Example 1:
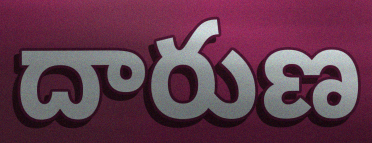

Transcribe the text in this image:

దారుణ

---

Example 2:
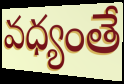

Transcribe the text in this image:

వధ్యంతే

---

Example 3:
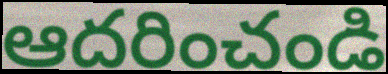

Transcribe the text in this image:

ఆదరించండి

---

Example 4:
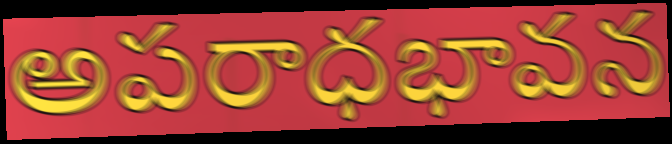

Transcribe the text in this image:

అపరాధభావన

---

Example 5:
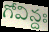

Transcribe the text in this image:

గోవిన్దః